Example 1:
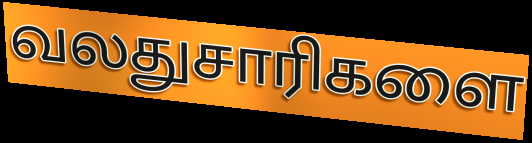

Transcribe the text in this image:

வலதுசாரிகளை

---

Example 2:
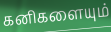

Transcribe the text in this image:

கனிகளையும்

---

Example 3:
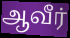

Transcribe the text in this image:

ஆவீர்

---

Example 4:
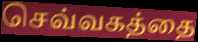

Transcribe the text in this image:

செவ்வகத்தை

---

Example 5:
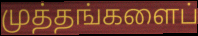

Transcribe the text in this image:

முத்தங்களைப்